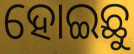
ହୋଇଛୁ